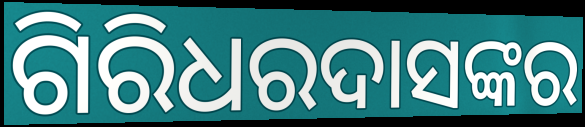
ଗିରିଧରଦାସଙ୍କର